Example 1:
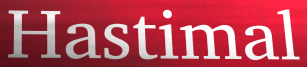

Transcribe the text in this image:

Hastimal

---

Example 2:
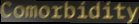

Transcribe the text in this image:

Comorbidity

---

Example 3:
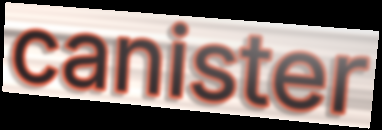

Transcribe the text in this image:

canister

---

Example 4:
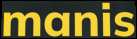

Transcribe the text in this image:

manis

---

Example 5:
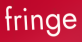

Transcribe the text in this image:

fringe